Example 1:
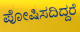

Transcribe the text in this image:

ಪೋಷಿಸದಿದ್ದರೆ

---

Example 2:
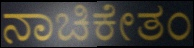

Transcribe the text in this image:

ನಾಚಿಕೇತಂ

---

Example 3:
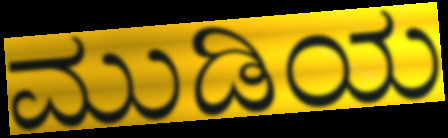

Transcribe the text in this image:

ಮುಡಿಯ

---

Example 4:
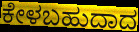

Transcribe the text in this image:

ಕೇಳಬಹುದಾದ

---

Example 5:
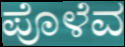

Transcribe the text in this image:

ಪೊಳೆವ